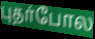
புதர்போல